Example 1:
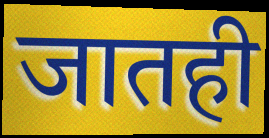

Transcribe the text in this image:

जातही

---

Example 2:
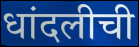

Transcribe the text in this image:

धांदलीची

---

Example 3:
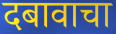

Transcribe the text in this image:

दबावाचा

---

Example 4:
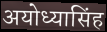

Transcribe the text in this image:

अयोध्यासिंह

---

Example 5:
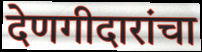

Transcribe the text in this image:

देणगीदारांचा